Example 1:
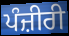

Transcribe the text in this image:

ਪੰਜ਼ੀਰੀ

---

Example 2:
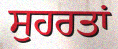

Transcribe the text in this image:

ਸੁਹਰਤਾਂ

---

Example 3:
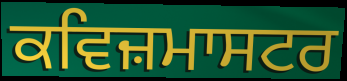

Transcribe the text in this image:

ਕਵਿਜ਼ਮਾਸਟਰ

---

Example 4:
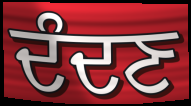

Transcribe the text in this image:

ਦੰਦਣ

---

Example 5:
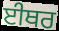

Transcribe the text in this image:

ਈਥਰ